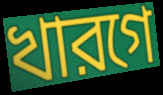
খারগে